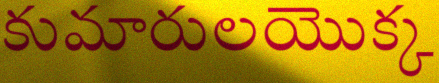
కుమారులయొక్క